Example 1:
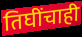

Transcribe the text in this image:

तिघींचाही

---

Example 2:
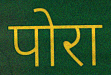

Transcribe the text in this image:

पोरा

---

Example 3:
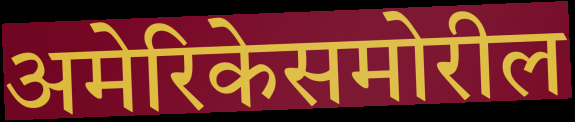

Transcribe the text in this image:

अमेरिकेसमोरील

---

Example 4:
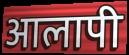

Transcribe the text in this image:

आलापी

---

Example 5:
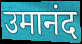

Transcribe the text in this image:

उमानंद